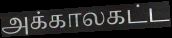
அக்காலகட்ட